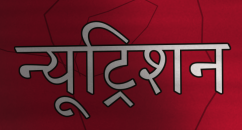
न्यूट्रिशन